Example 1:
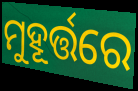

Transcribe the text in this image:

ମୁହୂର୍ତ୍ତରେ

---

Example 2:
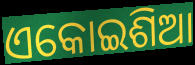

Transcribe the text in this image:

ଏକୋଇଶିଆ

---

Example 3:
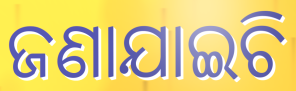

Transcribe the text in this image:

ଜଣାଯାଇଚି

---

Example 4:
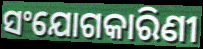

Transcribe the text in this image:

ସଂଯୋଗକାରିଣୀ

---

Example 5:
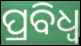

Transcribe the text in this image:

ପ୍ରବିଧ୍ଵ